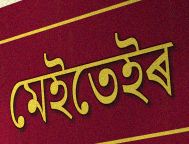
মেইতেইৰ